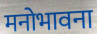
मनोभावना